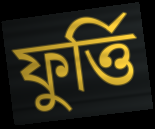
ফুৰ্ত্তি